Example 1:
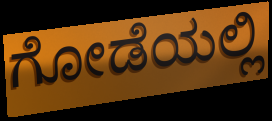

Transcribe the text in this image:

ಗೋಡೆಯಲ್ಲಿ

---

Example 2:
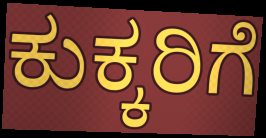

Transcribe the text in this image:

ಕುಕ್ಕರಿಗೆ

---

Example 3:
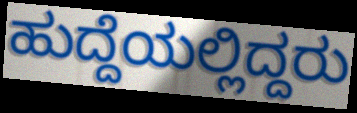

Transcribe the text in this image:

ಹುದ್ದೆಯಲ್ಲಿದ್ದರು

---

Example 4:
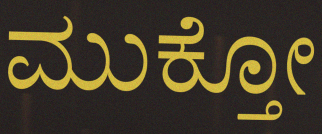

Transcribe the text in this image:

ಮುಕ್ತೋ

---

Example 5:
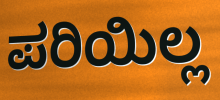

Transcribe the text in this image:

ಪರಿಯಿಲ್ಲ